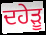
ਦਹੇੜੂ